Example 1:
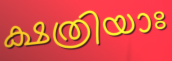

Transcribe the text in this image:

ക്ഷത്രിയാഃ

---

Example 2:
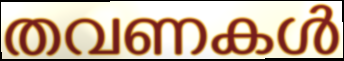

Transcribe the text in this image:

തവണകൾ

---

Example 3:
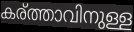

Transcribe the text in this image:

കര്ത്താവിനുള്ള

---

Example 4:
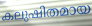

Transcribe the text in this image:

കലുഷിതമായ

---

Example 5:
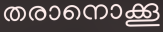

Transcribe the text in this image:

തരാനൊക്കൂ